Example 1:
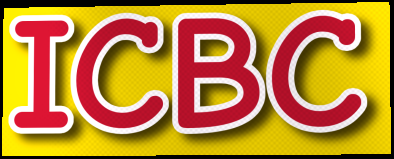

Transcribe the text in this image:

ICBC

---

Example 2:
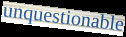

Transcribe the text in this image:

unquestionable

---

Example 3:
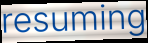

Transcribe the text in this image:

resuming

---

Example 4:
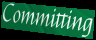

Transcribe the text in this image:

Committing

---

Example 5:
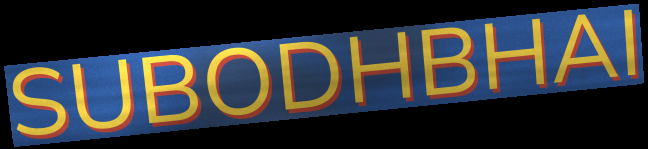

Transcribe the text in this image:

SUBODHBHAI